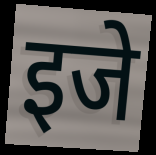
इजे